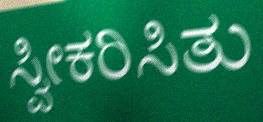
ಸ್ವೀಕರಿಸಿತು